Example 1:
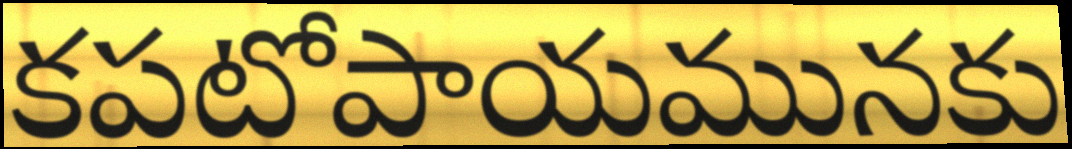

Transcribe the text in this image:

కపటోపాయమునకు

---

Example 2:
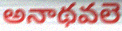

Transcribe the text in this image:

అనాథవలె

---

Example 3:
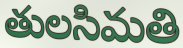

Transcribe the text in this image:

తులసిమతి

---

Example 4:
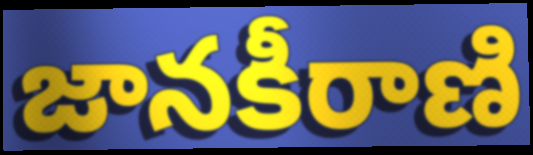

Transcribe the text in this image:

జానకీరాణి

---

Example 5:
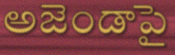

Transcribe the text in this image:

అజెండాపై